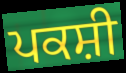
ਪਕਸ਼ੀ